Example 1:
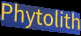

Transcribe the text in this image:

Phytolith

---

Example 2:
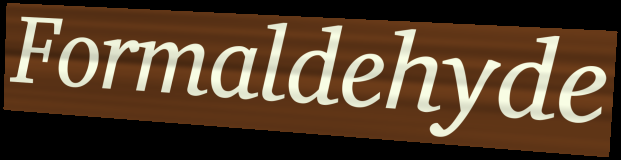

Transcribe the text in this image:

Formaldehyde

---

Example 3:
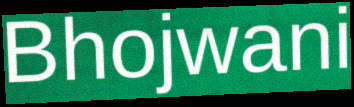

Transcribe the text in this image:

Bhojwani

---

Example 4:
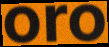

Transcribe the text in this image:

oro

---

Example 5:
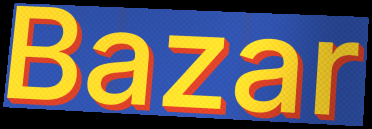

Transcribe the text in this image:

Bazar